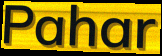
Pahar